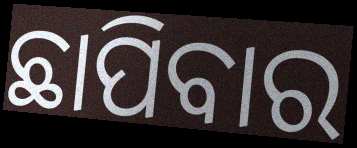
ଛାପିବାର